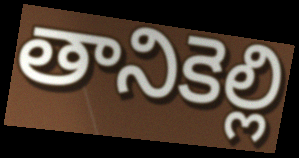
తానికెల్లి